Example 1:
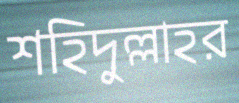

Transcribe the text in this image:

শহিদুল্লাহর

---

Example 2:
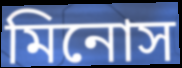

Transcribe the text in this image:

মিনোস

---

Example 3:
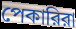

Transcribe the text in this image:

পেকারিরা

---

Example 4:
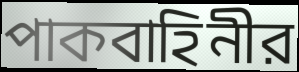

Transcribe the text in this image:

পাকবাহিনীর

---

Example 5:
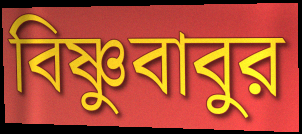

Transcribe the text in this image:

বিষ্ণুবাবুর